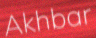
Akhbar